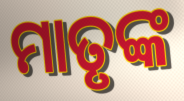
ମାତୃଙ୍କ